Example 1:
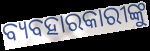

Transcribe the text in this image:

ବ୍ୟବହାରକାରୀଙ୍କୁ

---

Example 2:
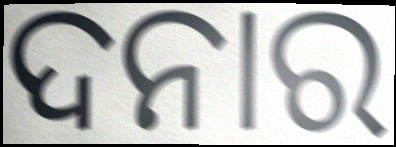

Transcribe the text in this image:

ଦନାର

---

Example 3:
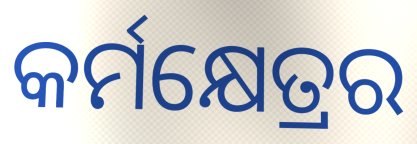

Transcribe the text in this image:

କର୍ମକ୍ଷେତ୍ରର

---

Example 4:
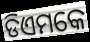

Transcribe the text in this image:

ଡିଏମକେ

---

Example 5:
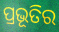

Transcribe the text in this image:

ପ୍ରଭୂତିର